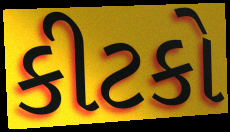
કીટકો